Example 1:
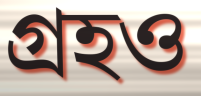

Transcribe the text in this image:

গ্রহও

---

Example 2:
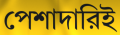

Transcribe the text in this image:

পেশাদারিই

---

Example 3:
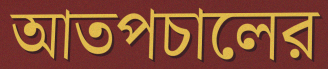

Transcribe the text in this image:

আতপচালের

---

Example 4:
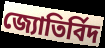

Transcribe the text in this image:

জ্যোতির্বিদ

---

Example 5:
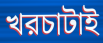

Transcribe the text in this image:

খরচাটাই